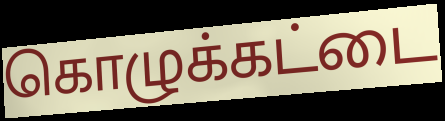
கொழுக்கட்டை